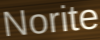
Norite